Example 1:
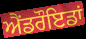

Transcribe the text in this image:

ਐਂਡਰੌਇਡਾਂ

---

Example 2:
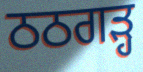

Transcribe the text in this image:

ਠਠਗੜ੍ਹ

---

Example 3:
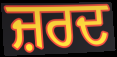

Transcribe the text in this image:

ਜ਼ਰਦ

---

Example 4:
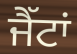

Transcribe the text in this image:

ਜੈੱਟਾਂ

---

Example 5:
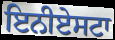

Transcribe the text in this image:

ਇਨੀਏਸਟਾ